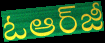
ఓఆర్‌జీ